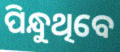
ପିନ୍ଧୁଥିବେ